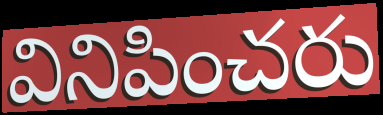
వినిపించరు